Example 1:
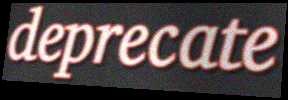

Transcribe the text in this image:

deprecate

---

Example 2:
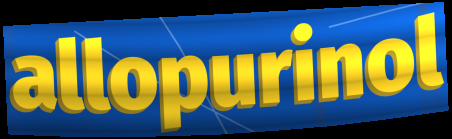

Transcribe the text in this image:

allopurinol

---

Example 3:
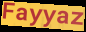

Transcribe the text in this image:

Fayyaz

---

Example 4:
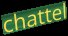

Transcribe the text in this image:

chattel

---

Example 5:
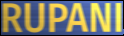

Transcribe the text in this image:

RUPANI